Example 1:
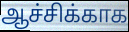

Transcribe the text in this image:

ஆச்சிக்காக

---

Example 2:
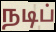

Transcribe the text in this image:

நடிப்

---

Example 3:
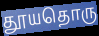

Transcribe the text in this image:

தூயதொரு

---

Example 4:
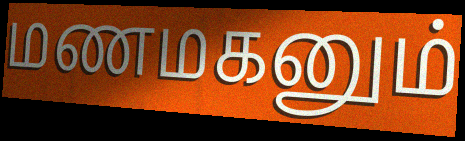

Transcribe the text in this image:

மணமகனும்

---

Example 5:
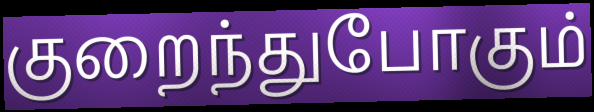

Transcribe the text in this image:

குறைந்துபோகும்